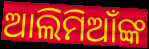
ଆଲିମିଆଁଙ୍କ